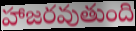
హాజరవుతుంది